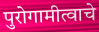
पुरोगामीत्वाचे